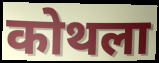
कोथला